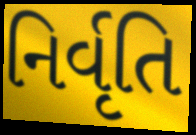
નિર્વૃતિ